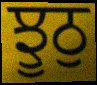
ਝੂਠੁ